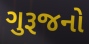
ગુરૂજનો